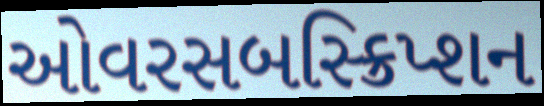
ઓવરસબસ્ક્રિપ્શન